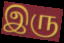
இரு